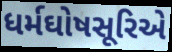
ધર્મઘોષસૂરિએ